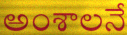
అంశాలనే